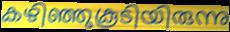
കഴിഞ്ഞുകൂടിയിരുന്നു